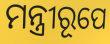
ମନ୍ତ୍ରୀରୂପେ